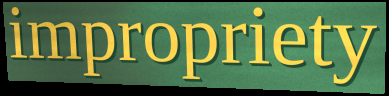
impropriety